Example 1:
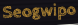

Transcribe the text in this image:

Seogwipo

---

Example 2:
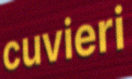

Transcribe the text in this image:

cuvieri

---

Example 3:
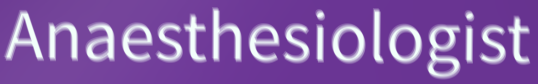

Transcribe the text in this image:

Anaesthesiologist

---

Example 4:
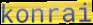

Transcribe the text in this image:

konrai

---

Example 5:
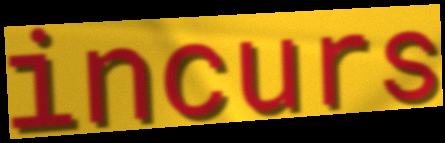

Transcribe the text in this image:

incurs